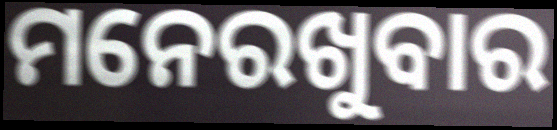
ମନେରଖୁବାର